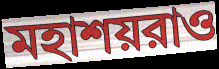
মহাশয়রাও